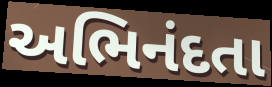
અભિનંદતા